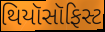
થિયૉસૉફિસ્ટ